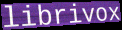
librivox